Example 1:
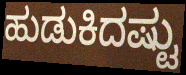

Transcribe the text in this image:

ಹುಡುಕಿದಷ್ಟು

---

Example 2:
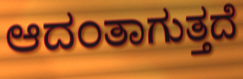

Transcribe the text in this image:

ಆದಂತಾಗುತ್ತದೆ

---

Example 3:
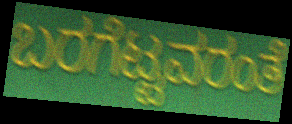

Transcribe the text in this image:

ಬರಗೆಟ್ಟವರಂತೆ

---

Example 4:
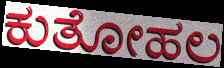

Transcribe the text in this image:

ಕುತೋಹಲ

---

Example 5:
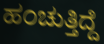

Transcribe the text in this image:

ಹಂಚುತ್ತಿದ್ದೆ